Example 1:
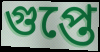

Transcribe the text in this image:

গুপ্তে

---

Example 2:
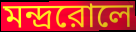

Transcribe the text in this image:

মন্দ্ররোলে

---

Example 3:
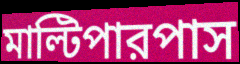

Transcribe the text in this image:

মাল্টিপারপাস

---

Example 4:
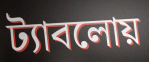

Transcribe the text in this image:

ট্যাবলোয়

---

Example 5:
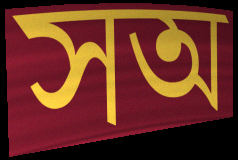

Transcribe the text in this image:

সঅ